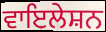
ਵਾਇਲੇਸ਼ਨ